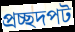
প্রচ্ছদপট